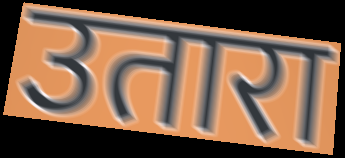
उतारा